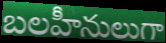
బలహీనులుగా